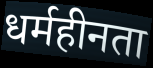
धर्महीनता